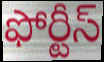
ఫోర్టీస్